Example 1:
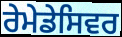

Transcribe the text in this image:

ਰੇਮੇਡੇਸਿਵਰ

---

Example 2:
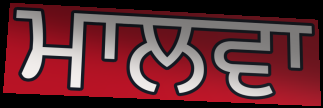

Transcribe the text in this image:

ਮਾਲਵਾ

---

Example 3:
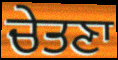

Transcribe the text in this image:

ਚੇਤਣਾ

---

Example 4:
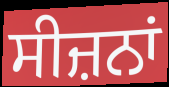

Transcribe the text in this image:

ਸੀਜ਼ਨਾਂ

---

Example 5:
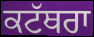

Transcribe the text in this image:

ਕਟੱਥਰਾ